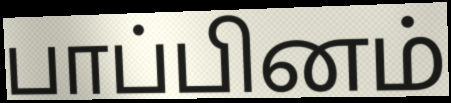
பாப்பினம்